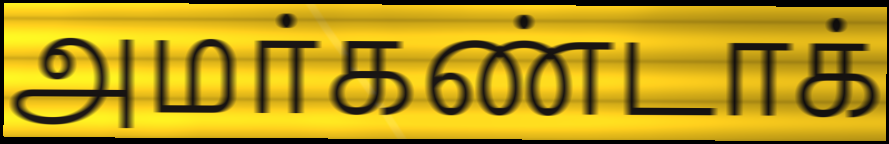
அமர்கண்டாக்